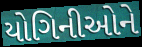
યોગિનીઓને